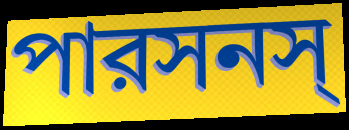
পারসনস্